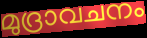
മുദ്രാവചനം